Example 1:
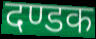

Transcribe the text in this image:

दण्डक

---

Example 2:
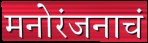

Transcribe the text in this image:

मनोरंजनाचं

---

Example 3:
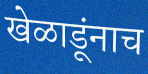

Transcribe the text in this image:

खेळाडूंनाच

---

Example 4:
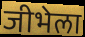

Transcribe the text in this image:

जीभेला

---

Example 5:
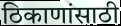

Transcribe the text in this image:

ठिकाणांसाठी